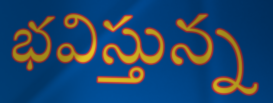
భవిస్తున్న